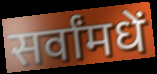
सर्वांमधें